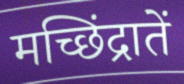
मच्छिंद्रातें